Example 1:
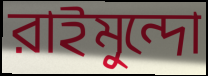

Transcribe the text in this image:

রাইমুন্দো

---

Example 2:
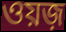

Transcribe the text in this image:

ওয়জ়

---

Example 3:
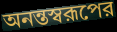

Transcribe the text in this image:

অনন্তস্বরূপের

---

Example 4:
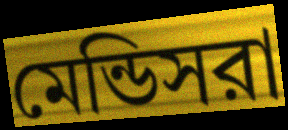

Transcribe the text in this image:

মেন্ডিসরা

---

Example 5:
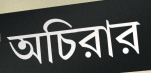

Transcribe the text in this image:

অচিরার